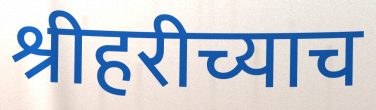
श्रीहरीच्याच